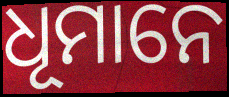
ଧୂମାନେ